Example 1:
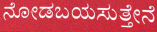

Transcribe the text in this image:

ನೋಡಬಯಸುತ್ತೇನೆ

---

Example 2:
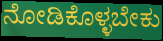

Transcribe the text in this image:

ನೋಡಿಕೊಳ್ಳಬೇಕು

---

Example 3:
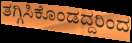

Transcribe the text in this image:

ತಗ್ಗಿಸಿಕೊಂಡದ್ದರಿಂದ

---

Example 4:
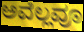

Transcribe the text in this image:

ಅವೆಲ್ಲವೂ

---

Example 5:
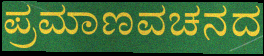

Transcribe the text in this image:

ಪ್ರಮಾಣವಚನದ